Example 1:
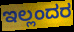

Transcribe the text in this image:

ಇಲ್ಲಂದರ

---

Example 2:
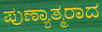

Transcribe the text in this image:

ಪುಣ್ಯಾತ್ಮರಾದ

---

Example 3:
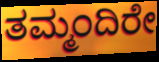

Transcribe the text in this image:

ತಮ್ಮಂದಿರೇ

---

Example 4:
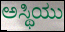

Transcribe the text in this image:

ಅಸ್ಥಿಯು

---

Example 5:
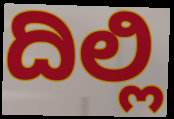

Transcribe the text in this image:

ದಿಲ್ಲಿ